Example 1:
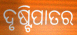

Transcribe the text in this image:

ଦୃଷ୍ଟିପାତର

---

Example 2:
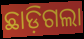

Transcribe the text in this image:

ଛାଡ଼ିଗଲା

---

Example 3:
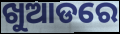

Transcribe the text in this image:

ଖୁଆଡରେ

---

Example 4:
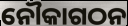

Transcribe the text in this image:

ନୌକାଗଠନ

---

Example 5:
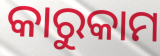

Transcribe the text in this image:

କାରୁକାମ